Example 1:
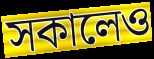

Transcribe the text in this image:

সকালেও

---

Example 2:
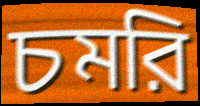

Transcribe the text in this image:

চমরি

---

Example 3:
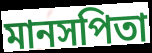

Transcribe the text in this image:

মানসপিতা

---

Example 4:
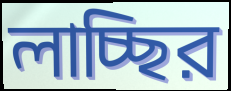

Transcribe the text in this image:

লাচ্ছির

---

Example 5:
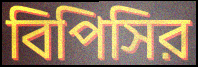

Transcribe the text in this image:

বিপিসির